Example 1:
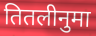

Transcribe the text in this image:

तितलीनुमा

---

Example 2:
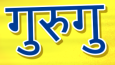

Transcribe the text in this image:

गुरुगु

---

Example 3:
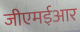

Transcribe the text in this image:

जीएमईआर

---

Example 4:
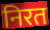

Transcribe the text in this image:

निरत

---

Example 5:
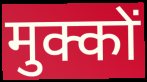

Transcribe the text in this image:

मुक्कों